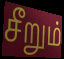
சீறும்